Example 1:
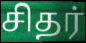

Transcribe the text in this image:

சிதர்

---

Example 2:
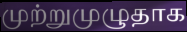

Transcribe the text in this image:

முற்றுமுழுதாக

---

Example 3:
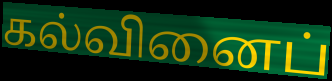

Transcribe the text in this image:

கல்வினைப்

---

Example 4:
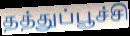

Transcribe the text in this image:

தத்துப்பூச்சி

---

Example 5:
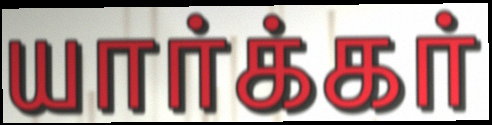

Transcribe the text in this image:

யார்க்கர்